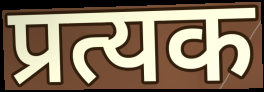
प्रत्यक